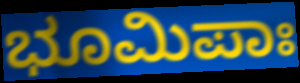
ಭೂಮಿಪಾಃ